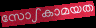
സോഽകാമയത